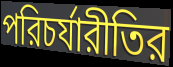
পরিচর্যারীতির